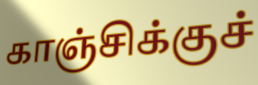
காஞ்சிக்குச்